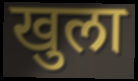
खुला